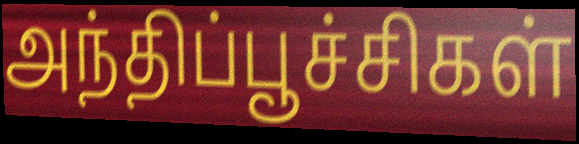
அந்திப்பூச்சிகள்